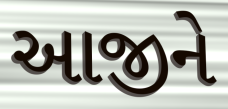
આજીને